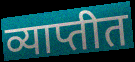
व्याप्तीत